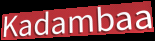
Kadambaa